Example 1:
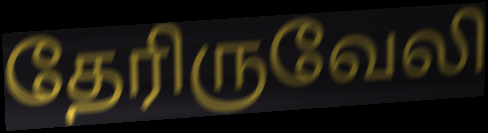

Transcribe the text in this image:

தேரிருவேலி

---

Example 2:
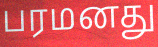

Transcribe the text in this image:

பரமனது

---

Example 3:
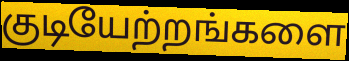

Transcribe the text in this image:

குடியேற்றங்களை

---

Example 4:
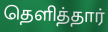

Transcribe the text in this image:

தெளித்தார்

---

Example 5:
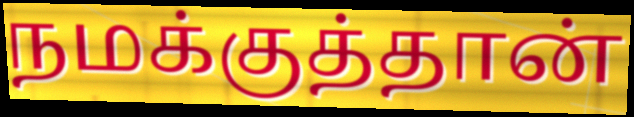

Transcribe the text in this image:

நமக்குத்தான்